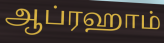
ஆப்ரஹாம்